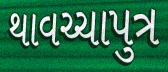
થાવચ્ચાપુત્ર